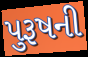
પુરૂષની